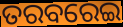
ତରବରେଇ